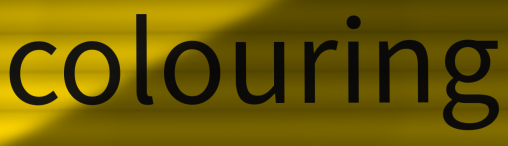
colouring